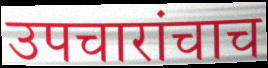
उपचारांचाच